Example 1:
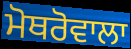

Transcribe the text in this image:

ਮੋਥਰੋਵਾਲਾ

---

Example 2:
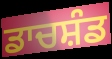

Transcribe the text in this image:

ਡਾਚਸ਼ੰਡ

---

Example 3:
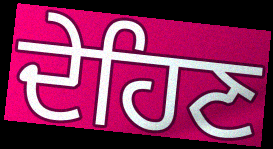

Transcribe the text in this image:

ਦੇਹਿਣ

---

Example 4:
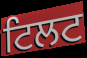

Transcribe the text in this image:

ਟਿਲਟ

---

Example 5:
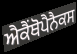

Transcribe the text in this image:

ਐਕੈਂਥੋਪੈਨੈਕਸ